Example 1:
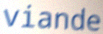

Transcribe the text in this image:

viande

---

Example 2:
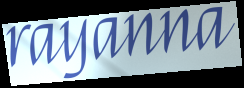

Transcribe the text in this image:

rayanna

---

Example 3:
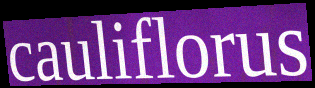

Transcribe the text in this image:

cauliflorus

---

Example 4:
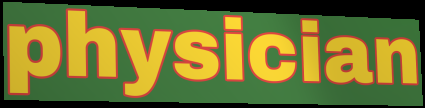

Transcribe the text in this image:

physician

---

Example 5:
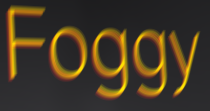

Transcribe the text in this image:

Foggy